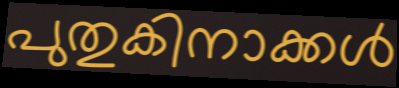
പുതുകിനാക്കൾ